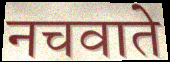
नचवाते